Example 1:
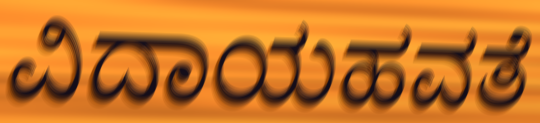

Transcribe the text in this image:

ವಿದಾಯಹವತೆ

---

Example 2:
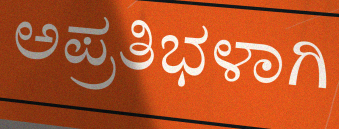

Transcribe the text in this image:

ಅಪ್ರತಿಭಳಾಗಿ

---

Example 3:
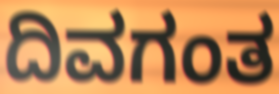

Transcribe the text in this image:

ದಿವಗಂತ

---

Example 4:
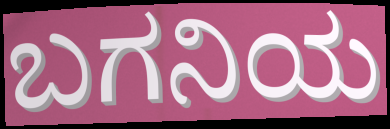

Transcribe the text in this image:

ಬಗನಿಯ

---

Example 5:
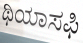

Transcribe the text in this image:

ಥಿಯಾಸಫಿ